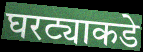
घरट्याकडे